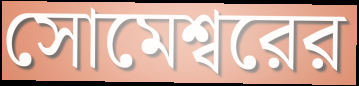
সোমেশ্বরের